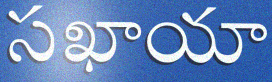
సఖాయా